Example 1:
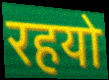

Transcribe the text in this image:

रहयो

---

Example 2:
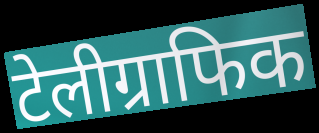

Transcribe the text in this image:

टेलीग्राफिक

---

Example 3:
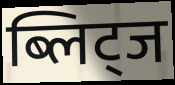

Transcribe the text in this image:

ब्लिट्ज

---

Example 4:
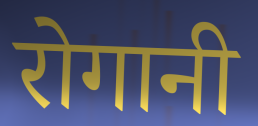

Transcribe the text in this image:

रोगानी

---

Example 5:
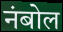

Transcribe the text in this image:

नंबोल